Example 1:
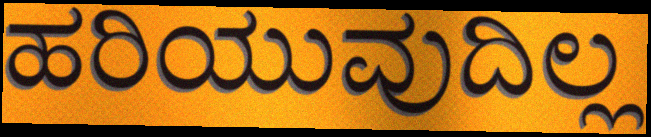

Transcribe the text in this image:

ಹರಿಯುವುದಿಲ್ಲ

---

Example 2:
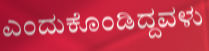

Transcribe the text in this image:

ಎಂದುಕೊಂಡಿದ್ದವಳು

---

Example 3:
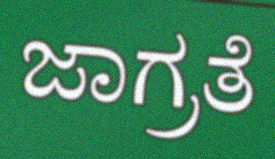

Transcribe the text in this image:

ಜಾಗ್ರತೆ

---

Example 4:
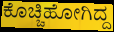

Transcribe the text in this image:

ಕೊಚ್ಚಿಹೋಗಿದ್ದ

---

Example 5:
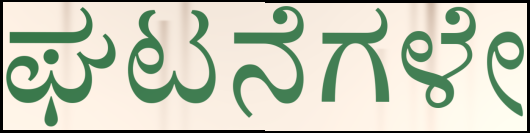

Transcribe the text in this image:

ಘಟನೆಗಳೇ